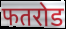
फतरोड